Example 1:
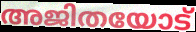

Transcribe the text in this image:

അജിതയോട്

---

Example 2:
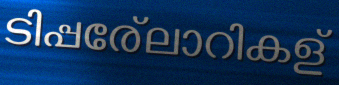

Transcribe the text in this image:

ടിപ്പര്ലോറികള്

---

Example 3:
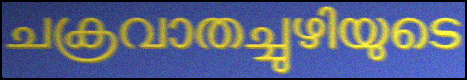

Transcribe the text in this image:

ചക്രവാതച്ചുഴിയുടെ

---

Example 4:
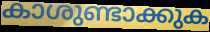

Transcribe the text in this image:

കാശുണ്ടാക്കുക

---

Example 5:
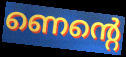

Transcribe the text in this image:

ണെന്റെ